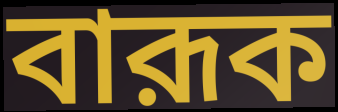
বারূক